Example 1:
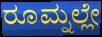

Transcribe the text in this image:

ರೂಮ್ನಲ್ಲೇ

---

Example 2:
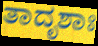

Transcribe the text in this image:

ತಾದೃಶಾಃ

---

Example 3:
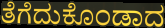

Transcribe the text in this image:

ತೆಗೆದುಕೊಂಡಾದ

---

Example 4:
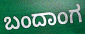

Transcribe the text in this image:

ಬಂದಾಂಗ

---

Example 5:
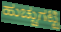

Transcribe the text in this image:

ಹುಚ್ಚುಗಟ್ಟಿ